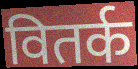
वितर्क